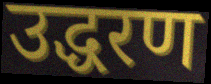
उद्धरण